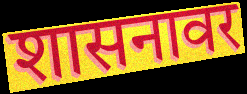
शासनावर